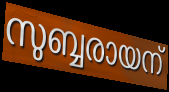
സുബ്ബരായന്